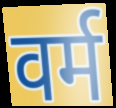
वर्म